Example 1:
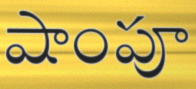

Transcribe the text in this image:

షాంపూ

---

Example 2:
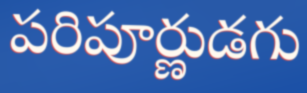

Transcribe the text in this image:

పరిపూర్ణుడగు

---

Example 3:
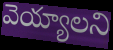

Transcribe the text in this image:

వెయ్యాలని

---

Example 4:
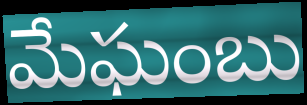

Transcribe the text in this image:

మేఘంబు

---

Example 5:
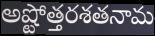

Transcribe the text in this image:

అష్టోత్తరశతనామ